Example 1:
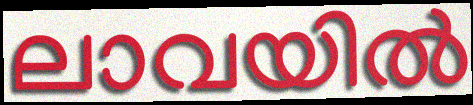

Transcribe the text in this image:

ലാവയിൽ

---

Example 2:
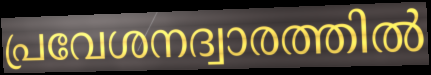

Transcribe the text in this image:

പ്രവേശനദ്വാരത്തിൽ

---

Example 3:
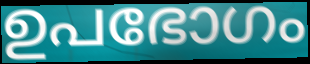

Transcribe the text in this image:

ഉപഭോഗം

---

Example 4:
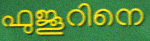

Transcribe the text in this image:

ഫുജൂറിനെ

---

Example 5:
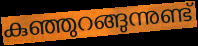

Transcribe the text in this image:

കുഞ്ഞുറങ്ങുന്നുണ്ട്